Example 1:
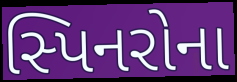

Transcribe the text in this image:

સ્પિનરોના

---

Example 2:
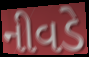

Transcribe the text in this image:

નીવડે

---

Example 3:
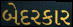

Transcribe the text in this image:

બેદરકાર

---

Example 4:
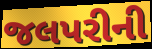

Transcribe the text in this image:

જલપરીની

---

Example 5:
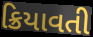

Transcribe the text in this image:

ક્રિયાવતી